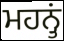
ਮਹਨ੍ਤਂ